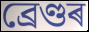
ব্ৰেণ্ডৰ